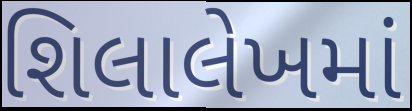
શિલાલેખમાં